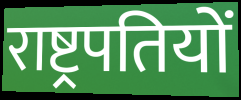
राष्ट्रपतियों